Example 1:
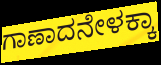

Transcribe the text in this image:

ಗಾಣಾದನೇಳಕ್ಕಾ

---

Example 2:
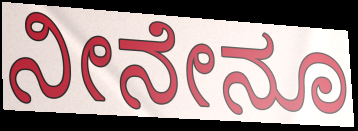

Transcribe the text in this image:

ನೀನೇನೂ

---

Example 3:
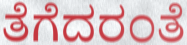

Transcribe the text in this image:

ತೆಗೆದರಂತೆ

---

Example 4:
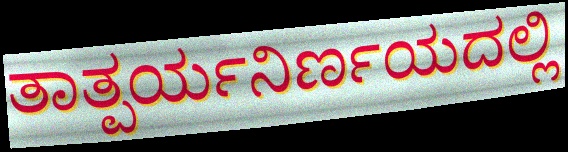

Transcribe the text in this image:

ತಾತ್ಪರ್ಯನಿರ್ಣಯದಲ್ಲಿ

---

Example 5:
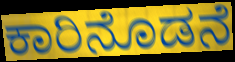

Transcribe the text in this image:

ಕಾರಿನೊಡನೆ